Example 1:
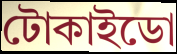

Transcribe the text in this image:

টোকাইডো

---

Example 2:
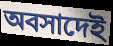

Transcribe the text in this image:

অবসাদেই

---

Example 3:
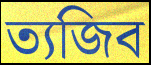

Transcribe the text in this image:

ত্যজিব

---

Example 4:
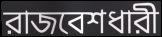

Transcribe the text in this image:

রাজবেশধারী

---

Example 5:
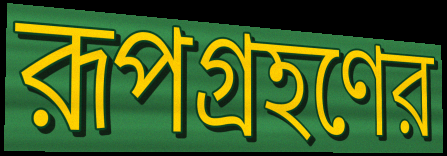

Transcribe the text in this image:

রূপগ্রহণের